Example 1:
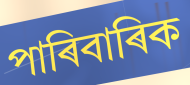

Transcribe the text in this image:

পাৰিবাৰিক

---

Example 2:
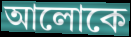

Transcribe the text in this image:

আলোকে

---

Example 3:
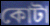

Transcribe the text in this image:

কোটা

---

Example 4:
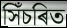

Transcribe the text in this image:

সিঁচৰিত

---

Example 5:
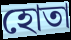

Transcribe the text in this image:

হোতা